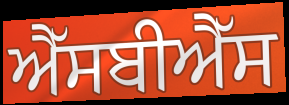
ਐੱਸਬੀਐੱਸ